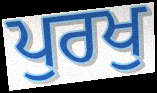
ਪੁਰਖੁ